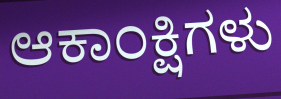
ಆಕಾಂಕ್ಷಿಗಳು